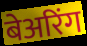
बेअरिंग